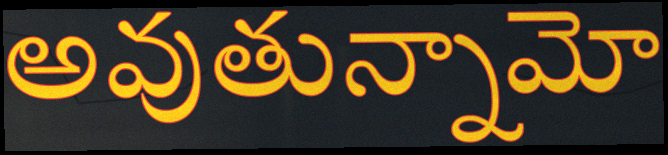
అవుతున్నామో